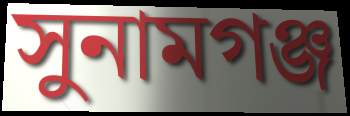
সুনামগঞ্জ